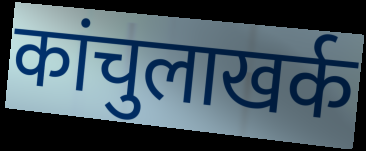
कांचुलाखर्क